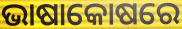
ଭାଷାକୋଷରେ